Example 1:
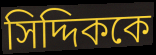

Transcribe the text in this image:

সিদ্দিককে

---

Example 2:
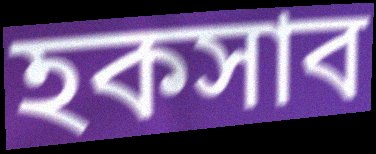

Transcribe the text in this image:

হকসাব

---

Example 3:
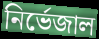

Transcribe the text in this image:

নির্ভেজাল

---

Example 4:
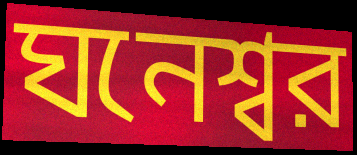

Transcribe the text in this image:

ঘনেশ্বর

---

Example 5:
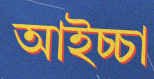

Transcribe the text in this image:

আইচ্চা